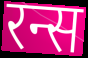
रन्स